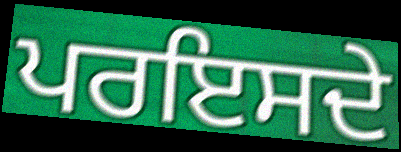
ਪਰਇਸਦੇ